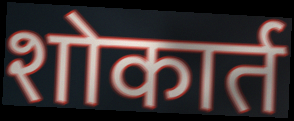
शोकार्त